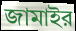
জামাইর